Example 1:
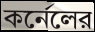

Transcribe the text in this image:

কর্নেলের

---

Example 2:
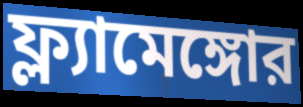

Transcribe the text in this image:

ফ্ল্যামেঙ্গোর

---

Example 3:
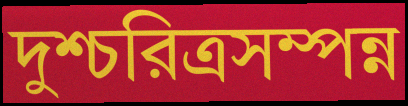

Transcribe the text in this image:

দুশ্চরিত্রসম্পন্ন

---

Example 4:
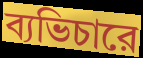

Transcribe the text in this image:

ব্যভিচারে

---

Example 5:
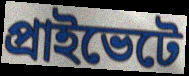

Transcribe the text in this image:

প্রাইভেটে